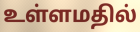
உள்ளமதில்